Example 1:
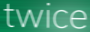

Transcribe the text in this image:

twice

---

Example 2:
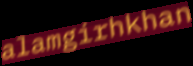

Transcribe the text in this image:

alamgirhkhan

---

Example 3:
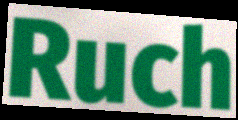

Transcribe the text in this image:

Ruch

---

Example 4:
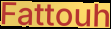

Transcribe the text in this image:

Fattouh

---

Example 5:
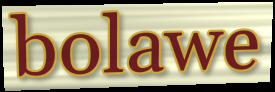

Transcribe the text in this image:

bolawe